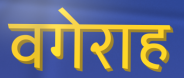
वगेराह